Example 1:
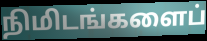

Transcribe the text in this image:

நிமிடங்களைப்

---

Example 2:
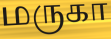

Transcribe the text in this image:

மருகா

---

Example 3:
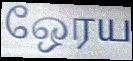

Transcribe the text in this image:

ஒேரய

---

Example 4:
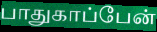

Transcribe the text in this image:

பாதுகாப்பேன்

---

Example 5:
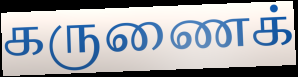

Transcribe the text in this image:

கருணைக்